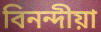
বিনন্দীয়া